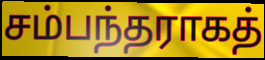
சம்பந்தராகத்